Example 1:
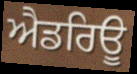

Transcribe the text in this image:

ਐਡਰਿਊ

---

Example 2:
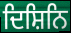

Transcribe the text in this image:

ਦਿਸ਼ਿਨਿ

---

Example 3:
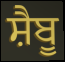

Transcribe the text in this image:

ਸ਼ੈਬੂ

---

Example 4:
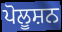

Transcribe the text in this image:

ਪੋਲੂਸ਼ਨ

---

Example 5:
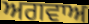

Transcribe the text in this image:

ਅਗਵਾਅ